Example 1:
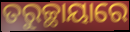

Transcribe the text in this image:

ତରୁଚ୍ଛାୟାରେ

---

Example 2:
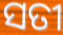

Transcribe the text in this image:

ସତୀ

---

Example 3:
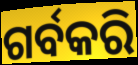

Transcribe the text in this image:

ଗର୍ବକରି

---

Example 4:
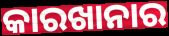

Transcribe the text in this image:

କାରଖାନାର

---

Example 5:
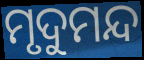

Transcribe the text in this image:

ମୃଦୁମନ୍ଦ